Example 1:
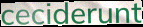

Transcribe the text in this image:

ceciderunt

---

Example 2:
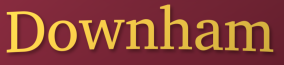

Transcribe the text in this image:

Downham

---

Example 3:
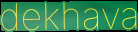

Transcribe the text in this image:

dekhava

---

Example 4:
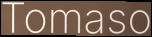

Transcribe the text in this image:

Tomaso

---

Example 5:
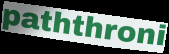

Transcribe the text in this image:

paththroni